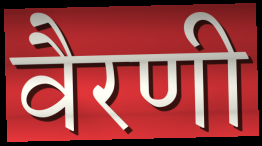
वैरणी